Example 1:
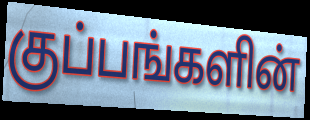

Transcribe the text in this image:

குப்பங்களின்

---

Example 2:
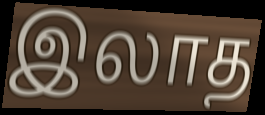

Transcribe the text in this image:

இலாத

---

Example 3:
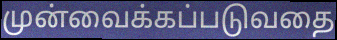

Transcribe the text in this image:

முன்வைக்கப்படுவதை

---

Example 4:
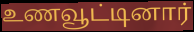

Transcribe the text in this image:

உணவூட்டினார்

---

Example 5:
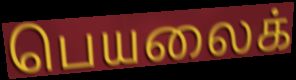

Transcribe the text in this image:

பெயலைக்